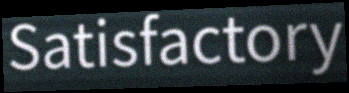
Satisfactory